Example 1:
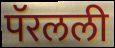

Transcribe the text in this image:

पॅरलली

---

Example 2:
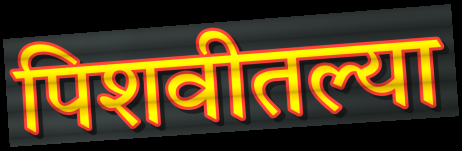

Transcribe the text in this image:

पिशवीतल्या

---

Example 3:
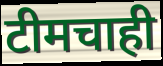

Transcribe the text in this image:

टीमचाही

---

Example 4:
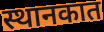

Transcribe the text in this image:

स्थानकात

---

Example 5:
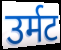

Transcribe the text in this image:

उर्मट